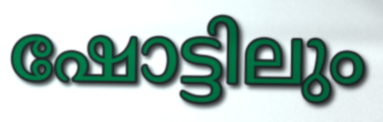
ഷോട്ടിലും